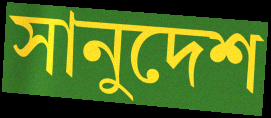
সানুদেশ